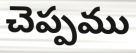
చెప్పము